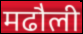
मढौली